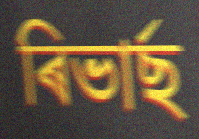
ৰিভাৰ্ছ